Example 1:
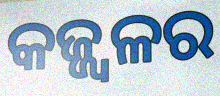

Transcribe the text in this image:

କଜ୍ଜ୍ୱଳର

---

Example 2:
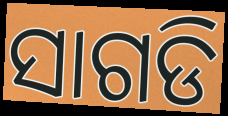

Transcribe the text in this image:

ସାଗଡି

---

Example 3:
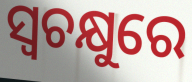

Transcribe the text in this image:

ସ୍ୱଚକ୍ଷୁରେ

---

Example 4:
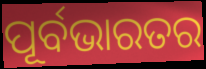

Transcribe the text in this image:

ପୂର୍ବଭାରତର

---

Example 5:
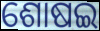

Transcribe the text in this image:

ଶୋଷଇ